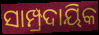
ସାମ୍ପ୍ରଦାୟିକ